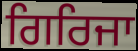
ਗਿਰਿਜਾ